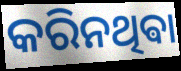
କରିନଥିଵା